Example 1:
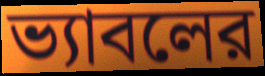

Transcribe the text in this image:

ভ্যাবলের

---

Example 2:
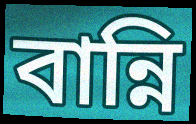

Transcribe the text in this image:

বান্নি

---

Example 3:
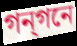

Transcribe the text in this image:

গন্গনে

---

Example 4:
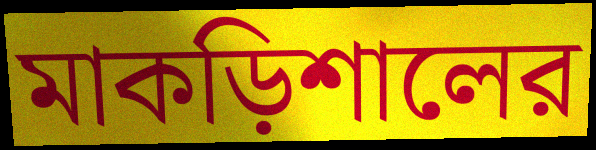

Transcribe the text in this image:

মাকড়িশালের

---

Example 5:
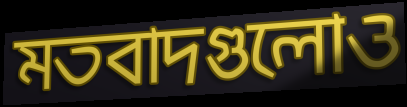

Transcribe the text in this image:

মতবাদগুলোও